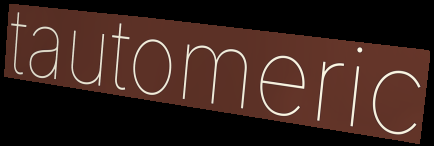
tautomeric